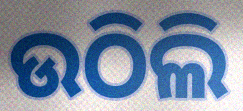
ଉଠିଲି